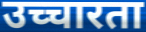
उच्चारता